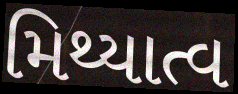
મિથ્યાત્વ